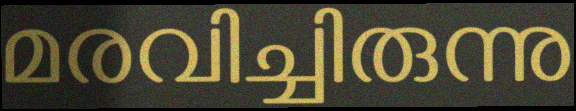
മരവിച്ചിരുന്നു